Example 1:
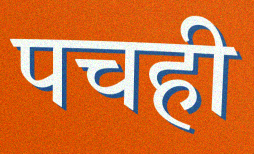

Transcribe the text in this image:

पचही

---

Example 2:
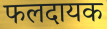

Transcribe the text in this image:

फलदायक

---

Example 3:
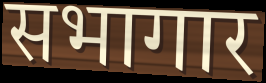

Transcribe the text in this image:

सभागार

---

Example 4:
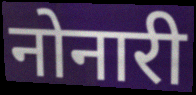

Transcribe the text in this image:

नोनारी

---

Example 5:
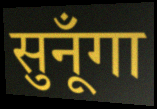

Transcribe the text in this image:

सुनूँगा